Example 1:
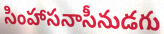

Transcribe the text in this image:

సింహాసనాసీనుడగు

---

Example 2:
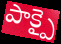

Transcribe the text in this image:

పాక్పై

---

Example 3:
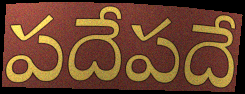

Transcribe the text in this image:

పదేపదే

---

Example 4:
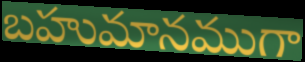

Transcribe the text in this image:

బహుమానముగా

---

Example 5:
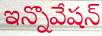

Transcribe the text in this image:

ఇన్నొవేషన్